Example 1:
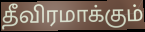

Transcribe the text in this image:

தீவிரமாக்கும்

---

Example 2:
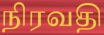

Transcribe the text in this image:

நிரவதி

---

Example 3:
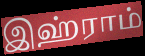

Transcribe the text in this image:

இஹ்ராம்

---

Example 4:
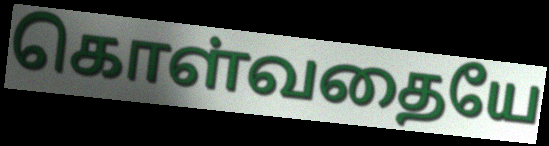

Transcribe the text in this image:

கொள்வதையே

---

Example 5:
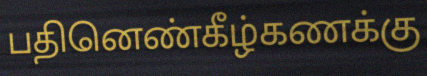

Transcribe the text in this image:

பதினெண்கீழ்கணக்கு